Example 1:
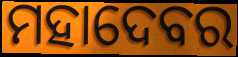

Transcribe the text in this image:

ମହାଦେବର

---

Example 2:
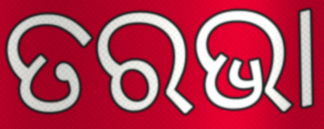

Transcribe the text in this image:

ତରଭା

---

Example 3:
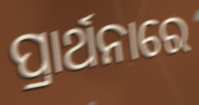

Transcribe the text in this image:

ପ୍ରାର୍ଥନାରେ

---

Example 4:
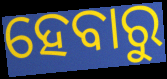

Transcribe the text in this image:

ହେବାରୁ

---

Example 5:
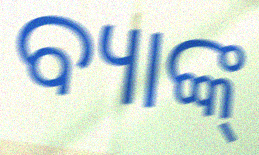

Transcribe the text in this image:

ବ୍ୟାଙ୍କ୍